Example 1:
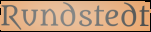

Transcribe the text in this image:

Rundstedt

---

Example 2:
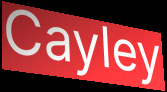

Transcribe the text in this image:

Cayley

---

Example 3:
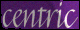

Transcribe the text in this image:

centric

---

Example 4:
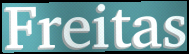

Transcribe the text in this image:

Freitas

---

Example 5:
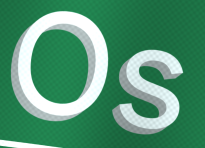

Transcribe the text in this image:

Os